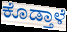
ಕೊಡ್ತಾಳೆ